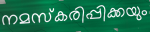
നമസ്കരിപ്പിക്കയും